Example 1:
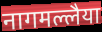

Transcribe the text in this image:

नागमल्लैया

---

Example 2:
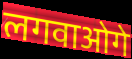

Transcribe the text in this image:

लगवाओगे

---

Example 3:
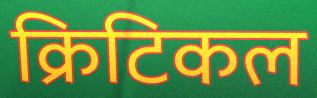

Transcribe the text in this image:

क्रिटिकल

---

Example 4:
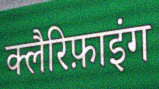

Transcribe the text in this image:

क्लैरिफ़ाइंग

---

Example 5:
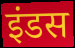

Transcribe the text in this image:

इंडस